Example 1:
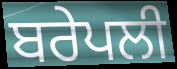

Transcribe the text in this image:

ਬਰੇਪਲੀ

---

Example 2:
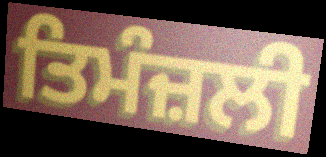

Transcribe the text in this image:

ਤਿਮੰਜ਼ਲੀ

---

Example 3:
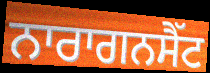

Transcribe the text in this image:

ਨਾਰਾਗਨਸੈੱਟ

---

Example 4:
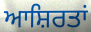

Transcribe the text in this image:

ਆਸ਼ਿਰਤਾਂ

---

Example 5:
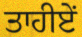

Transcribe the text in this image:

ਤਾਹੀਏਂ